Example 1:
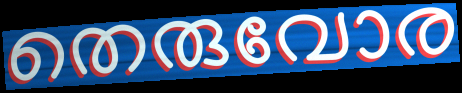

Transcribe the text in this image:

തെരുവോര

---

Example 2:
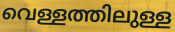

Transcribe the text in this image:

വെള്ളത്തിലുള്ള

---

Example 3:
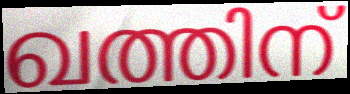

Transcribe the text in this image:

ഖത്തിന്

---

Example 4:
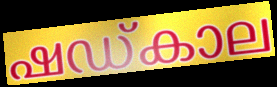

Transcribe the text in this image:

ഷഡ്കാല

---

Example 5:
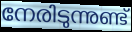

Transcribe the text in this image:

നേരിടുന്നുണ്ട്